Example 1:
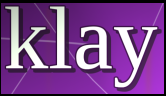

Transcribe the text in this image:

klay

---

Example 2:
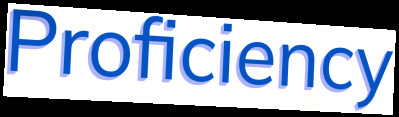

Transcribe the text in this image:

Proficiency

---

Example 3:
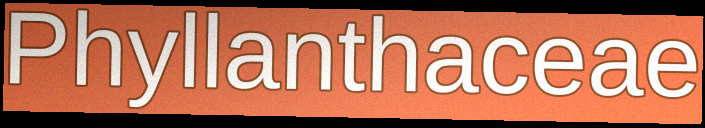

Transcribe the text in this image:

Phyllanthaceae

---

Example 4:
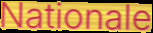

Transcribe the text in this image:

Nationale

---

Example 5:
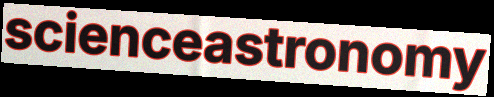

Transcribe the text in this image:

scienceastronomy